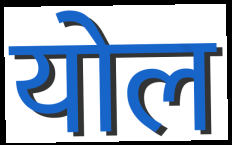
योल